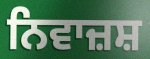
ਨਿਵਾਜ਼ਸ਼